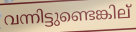
വന്നിട്ടുണ്ടെങ്കില്